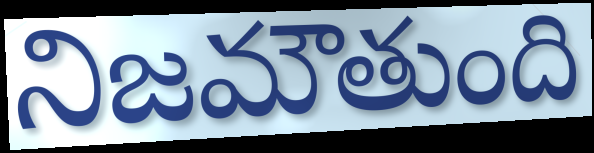
నిజమౌతుంది